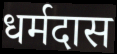
धर्मदास